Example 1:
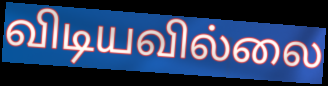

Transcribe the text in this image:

விடியவில்லை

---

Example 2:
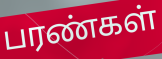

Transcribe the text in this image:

பரண்கள்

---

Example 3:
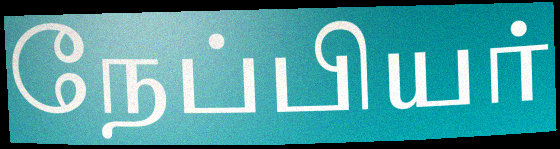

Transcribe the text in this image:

நேப்பியர்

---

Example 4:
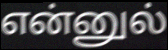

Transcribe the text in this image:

என்னுல்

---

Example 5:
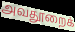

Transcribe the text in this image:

அவதூறைக்